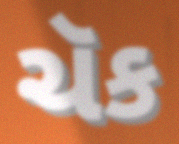
ચૅક